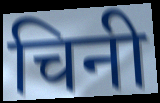
चिनी